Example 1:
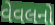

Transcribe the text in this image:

વેવલનો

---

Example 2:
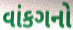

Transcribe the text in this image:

વાંકગનો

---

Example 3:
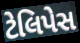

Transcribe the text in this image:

ટેલિપેસ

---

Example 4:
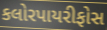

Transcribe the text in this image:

કલોરપાયરીફોસ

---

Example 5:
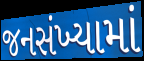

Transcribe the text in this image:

જનસંખ્યામાં